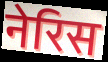
नेरिस